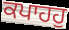
ਕਪਾਹਹੁ